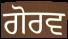
ਗੋਰਵ